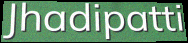
Jhadipatti